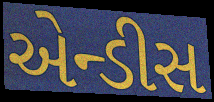
એન્ડીસ